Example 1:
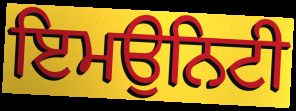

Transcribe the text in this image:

ਇਮਉਨਿਟੀ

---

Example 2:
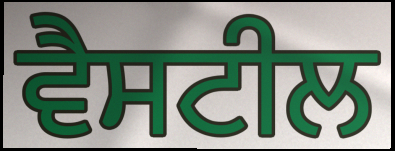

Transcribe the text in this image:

ਵੈਸਟੀਲ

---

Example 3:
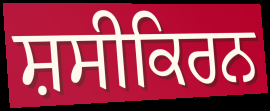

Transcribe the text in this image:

ਸ਼ਸੀਕਿਰਨ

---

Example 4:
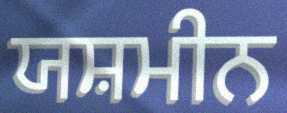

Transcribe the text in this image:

ਯਸ਼ਮੀਨ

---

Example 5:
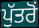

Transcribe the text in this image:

ਪੁੱਤਰੋਂ